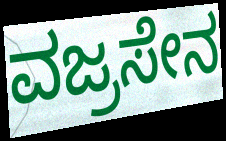
ವಜ್ರಸೇನ